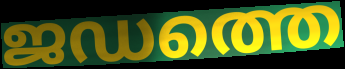
ജഡത്തെ